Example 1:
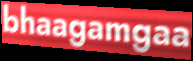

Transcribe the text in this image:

bhaagamgaa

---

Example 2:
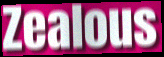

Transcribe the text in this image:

Zealous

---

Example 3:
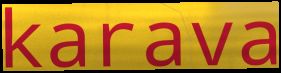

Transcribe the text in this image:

karava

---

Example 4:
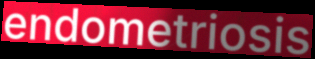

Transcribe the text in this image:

endometriosis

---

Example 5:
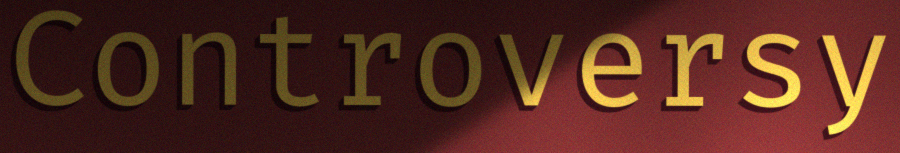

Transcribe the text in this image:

Controversy